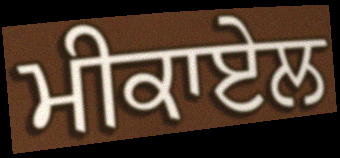
ਮੀਕਾਏਲ